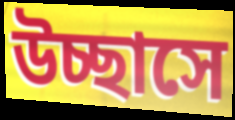
উচ্ছাসে